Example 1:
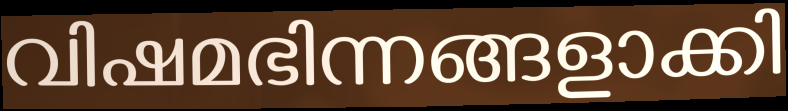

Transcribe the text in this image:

വിഷമഭിന്നങ്ങളാക്കി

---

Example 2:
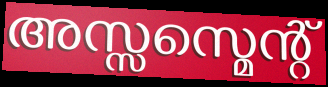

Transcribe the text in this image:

അസ്സസ്മെന്റ്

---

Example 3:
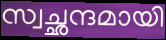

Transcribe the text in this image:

സ്വച്ഛന്ദമായി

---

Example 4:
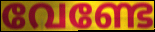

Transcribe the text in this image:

വേണ്ടേ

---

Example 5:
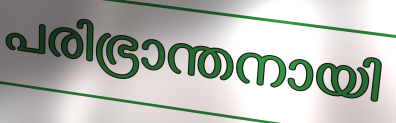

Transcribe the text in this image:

പരിഭ്രാന്തനായി